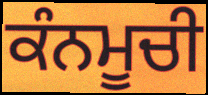
ਕੰਨਮੂਚੀ